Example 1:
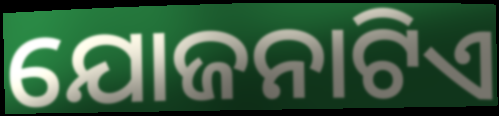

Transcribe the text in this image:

ଯୋଜନାଟିଏ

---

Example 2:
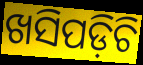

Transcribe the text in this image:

ଖସିପଡ଼ିଚି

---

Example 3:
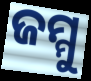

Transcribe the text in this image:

ଜମ୍ମୁ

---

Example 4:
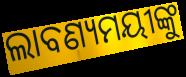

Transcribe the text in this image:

ଲାବଣ୍ୟମୟୀଙ୍କୁ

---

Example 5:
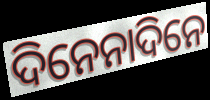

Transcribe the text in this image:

ଦିନେନାଦିନେ